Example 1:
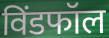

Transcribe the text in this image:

विंडफॉल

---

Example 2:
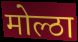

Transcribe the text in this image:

मोल्ठा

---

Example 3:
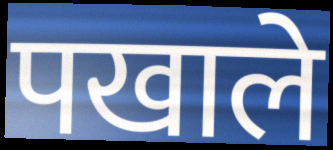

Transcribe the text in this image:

पखाले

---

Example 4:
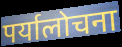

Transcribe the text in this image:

पर्यालोचना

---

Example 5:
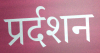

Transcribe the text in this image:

प्रर्दशन